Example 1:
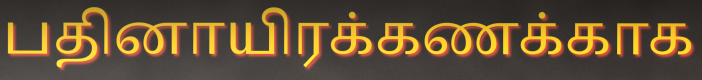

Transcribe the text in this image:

பதினாயிரக்கணக்காக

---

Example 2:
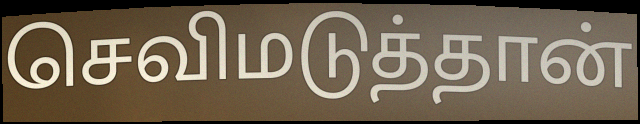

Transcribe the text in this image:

செவிமடுத்தான்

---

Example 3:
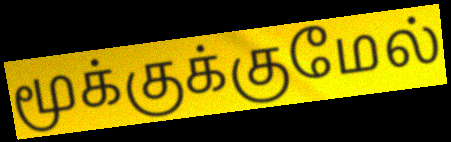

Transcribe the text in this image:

மூக்குக்குமேல்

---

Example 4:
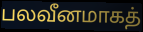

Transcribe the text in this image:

பலவீனமாகத்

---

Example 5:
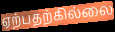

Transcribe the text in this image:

ஏற்பதற்கில்லை